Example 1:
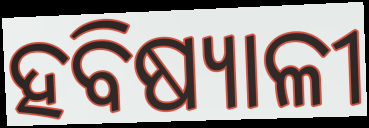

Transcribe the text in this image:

ହବିଷ୍ୟାଳୀ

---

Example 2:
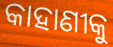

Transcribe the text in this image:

କାହାଣୀକୁ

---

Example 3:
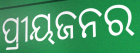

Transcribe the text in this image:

ପ୍ରୀୟଜନର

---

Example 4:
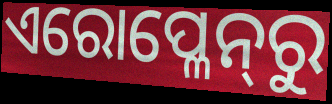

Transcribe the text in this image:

ଏରୋପ୍ଳେନ୍‍ରୁ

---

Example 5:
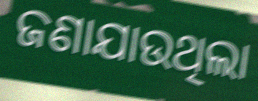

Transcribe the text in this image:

ଜଣାଯାଉଥିଲା